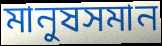
মানুষসমান